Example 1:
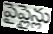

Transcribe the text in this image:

పైప్లైన్లు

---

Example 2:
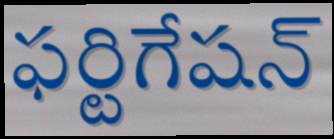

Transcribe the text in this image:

ఫర్టిగేషన్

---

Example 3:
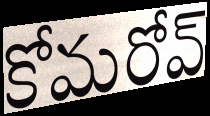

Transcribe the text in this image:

కోమరోవ్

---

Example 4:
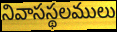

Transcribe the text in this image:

నివాసస్థలములు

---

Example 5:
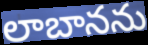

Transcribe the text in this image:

లాబానను